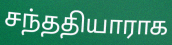
சந்ததியாராக